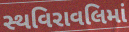
સ્થવિરાવલિમાં